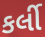
કર્લી